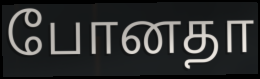
போனதா